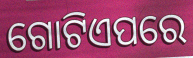
ଗୋଟିଏପରେ